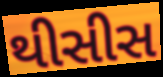
થીસીસ